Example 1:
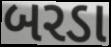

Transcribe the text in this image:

બરડા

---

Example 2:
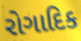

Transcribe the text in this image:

રોગાદિક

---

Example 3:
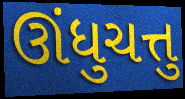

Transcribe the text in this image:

ઊંધુચત્તુ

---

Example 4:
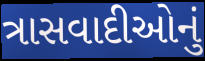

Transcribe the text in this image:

ત્રાસવાદીઓનું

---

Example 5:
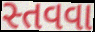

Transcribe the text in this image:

સ્તવવા